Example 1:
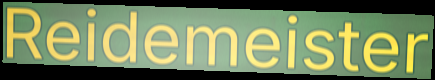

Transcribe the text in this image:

Reidemeister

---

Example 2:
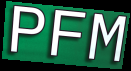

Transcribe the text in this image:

PFM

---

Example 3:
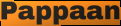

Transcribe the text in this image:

Pappaan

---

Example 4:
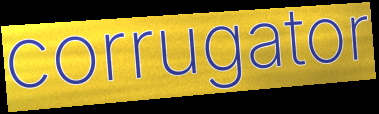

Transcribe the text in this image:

corrugator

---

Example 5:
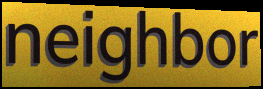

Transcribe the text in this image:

neighbor